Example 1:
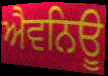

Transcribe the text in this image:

ਐਵਨਿਊ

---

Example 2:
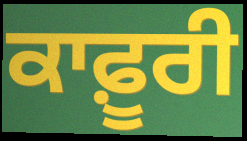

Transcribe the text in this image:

ਕਾਫ਼ੂਰੀ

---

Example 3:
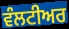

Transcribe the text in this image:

ਵੰਲਟੀਅਰ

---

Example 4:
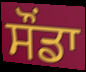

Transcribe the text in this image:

ਸੌਂਡਾ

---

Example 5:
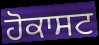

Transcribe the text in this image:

ਹੋਕਾਸਟ